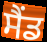
ਸੈਂਡ